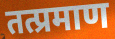
तत्प्रमाण